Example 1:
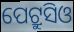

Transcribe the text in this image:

ପେଟ୍ରୁସିଓ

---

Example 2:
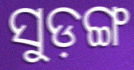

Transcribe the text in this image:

ସୁଡ଼ଙ୍ଗ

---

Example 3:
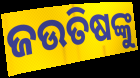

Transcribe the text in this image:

ଜଉତିଷଙ୍କୁ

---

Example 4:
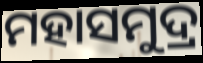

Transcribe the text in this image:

ମହାସମୁଦ୍ର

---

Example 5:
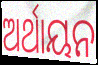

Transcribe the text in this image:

ଅର୍ଥାୟନ